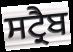
ਸਟ੍ਰੈਬ